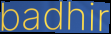
badhir